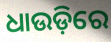
ଧାଉଡ଼ିରେ